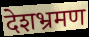
देशभ्रमण